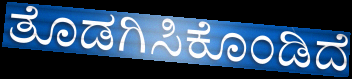
ತೊಡಗಿಸಿಕೊಂಡಿದೆ